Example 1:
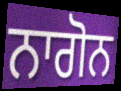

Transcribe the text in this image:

ਨਾਗੋਨ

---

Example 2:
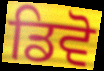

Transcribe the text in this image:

ਡਿਵੋ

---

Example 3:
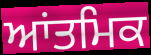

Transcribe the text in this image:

ਆਂਤਮਿਕ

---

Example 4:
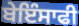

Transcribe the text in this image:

ਬੇਇੰਸਾਫੀ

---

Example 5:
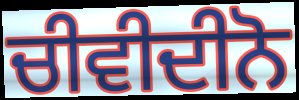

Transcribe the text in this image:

ਚੀਵੀਦੀਨੋ